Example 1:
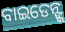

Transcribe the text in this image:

ବାଇଡେନ୍ଙ୍କ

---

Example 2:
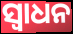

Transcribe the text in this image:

ସ୍ଵାଧନ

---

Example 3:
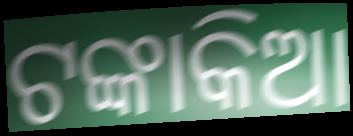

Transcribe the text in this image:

ଟଙ୍କାକିଆ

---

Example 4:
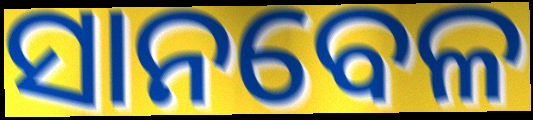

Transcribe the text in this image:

ସାନବେଳ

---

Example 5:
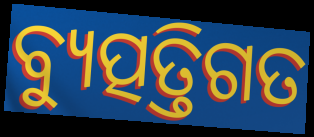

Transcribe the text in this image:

ବ୍ୟୁତ୍ପତ୍ତିଗତ